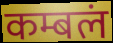
कम्बलं